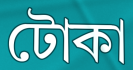
টোকা